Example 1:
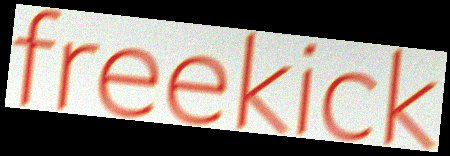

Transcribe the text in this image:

freekick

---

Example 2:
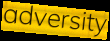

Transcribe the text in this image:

adversity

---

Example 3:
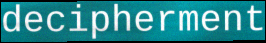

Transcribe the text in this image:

decipherment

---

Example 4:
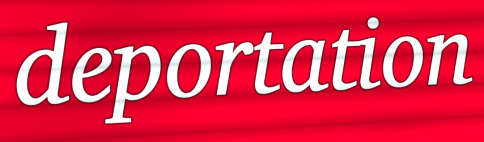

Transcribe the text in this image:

deportation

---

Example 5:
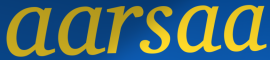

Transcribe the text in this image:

aarsaa